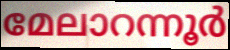
മേലാറന്നൂർ